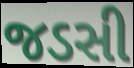
જડસી